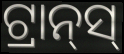
ଟ୍ରାନ୍‍ସ୍